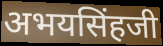
अभयसिंहजी